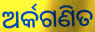
ଅର୍କଗଣିତ